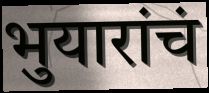
भुयारांचं